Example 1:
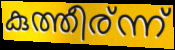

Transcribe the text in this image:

കുത്തീര്ന്ന്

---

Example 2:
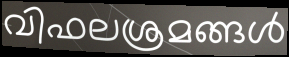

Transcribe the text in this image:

വിഫലശ്രമങ്ങൾ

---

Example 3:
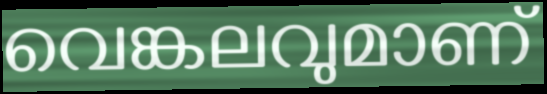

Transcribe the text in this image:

വെങ്കലവുമാണ്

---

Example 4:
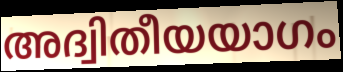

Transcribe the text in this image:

അദ്വിതീയയാഗം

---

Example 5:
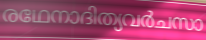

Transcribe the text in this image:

രഥേനാദിത്യവർചസാ